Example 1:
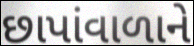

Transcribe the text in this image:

છાપાંવાળાને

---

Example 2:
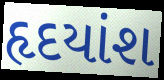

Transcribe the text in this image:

હૃદયાંશ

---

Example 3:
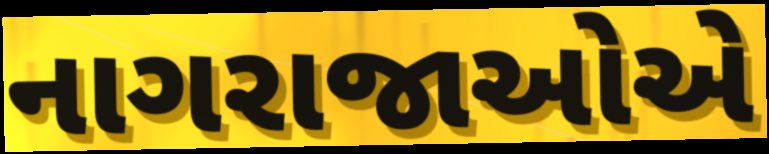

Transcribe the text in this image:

નાગરાજાઓએ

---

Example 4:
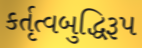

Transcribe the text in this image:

કર્તૃત્વબુદ્ધિરૂપ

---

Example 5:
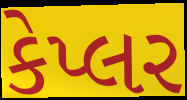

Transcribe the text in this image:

કેપ્લર